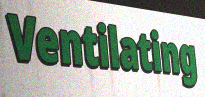
Ventilating